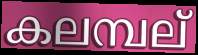
കലമ്പല്